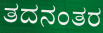
ತದನಂತರ